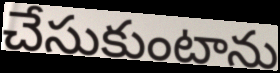
చేసుకుంటాను